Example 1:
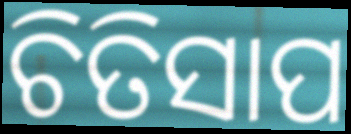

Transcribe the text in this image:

ଚିତିସାପ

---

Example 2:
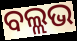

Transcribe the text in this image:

ବଲ୍ଲଭ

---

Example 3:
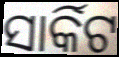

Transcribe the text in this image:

ସାର୍କିଟ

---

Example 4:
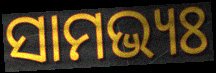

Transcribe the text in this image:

ସାମଭ୍ୟଃ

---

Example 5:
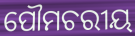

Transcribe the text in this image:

ପୌମଚରୀୟ